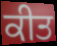
ਕੀਤ